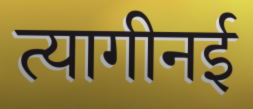
त्यागीनई